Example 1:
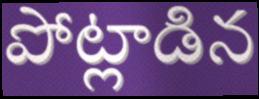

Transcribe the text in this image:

పోట్లాడిన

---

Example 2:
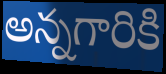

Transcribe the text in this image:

అన్నగారికి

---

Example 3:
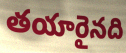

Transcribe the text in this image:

తయారైనది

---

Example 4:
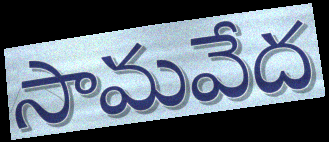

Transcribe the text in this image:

సామవేద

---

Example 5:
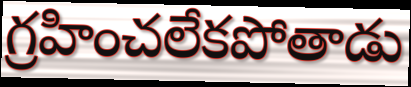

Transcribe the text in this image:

గ్రహించలేకపోతాడు